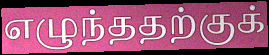
எழுந்ததற்குக்